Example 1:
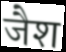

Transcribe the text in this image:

जैश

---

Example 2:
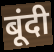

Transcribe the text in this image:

बूंदी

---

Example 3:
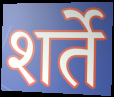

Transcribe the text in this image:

शर्ते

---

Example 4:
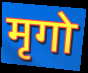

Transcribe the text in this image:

मृगो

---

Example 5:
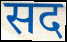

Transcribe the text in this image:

सद